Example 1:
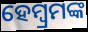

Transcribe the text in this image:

ହେମ୍ବ୍ରମଙ୍କ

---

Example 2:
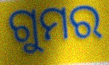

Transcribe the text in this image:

ଗୁମର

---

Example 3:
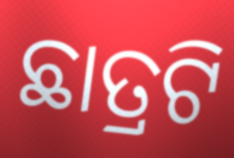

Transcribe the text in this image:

ଛାତ୍ରଟି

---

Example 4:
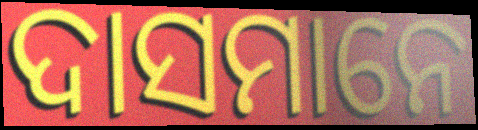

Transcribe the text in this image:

ଦାସମାନେ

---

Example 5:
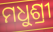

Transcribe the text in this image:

ମଧୁଶ୍ରୀ